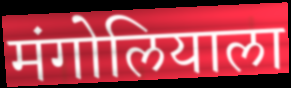
मंगोलियाला